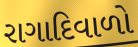
રાગાદિવાળો